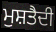
ਮੁਸ਼ਤੈਦੀ